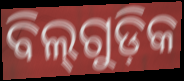
ବିଲ୍‌ଗୁଡ଼ିକ